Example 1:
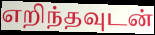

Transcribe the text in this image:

எறிந்தவுடன்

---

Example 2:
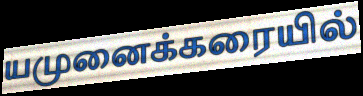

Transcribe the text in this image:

யமுனைக்கரையில்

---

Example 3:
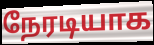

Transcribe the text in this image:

நேரடியாக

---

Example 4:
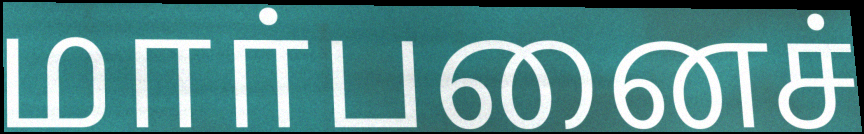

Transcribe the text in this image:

மார்பனைச்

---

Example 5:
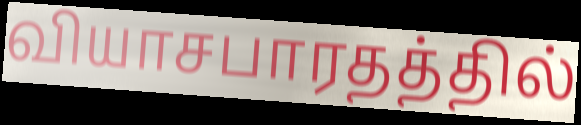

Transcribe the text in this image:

வியாசபாரதத்தில்